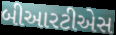
બીઆરટીએસ